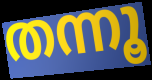
തന്നൂ